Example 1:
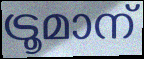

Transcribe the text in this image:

ട്രൂമാന്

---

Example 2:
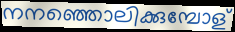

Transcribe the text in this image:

നനഞ്ഞൊലിക്കുമ്പോള്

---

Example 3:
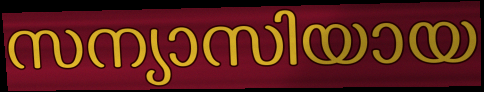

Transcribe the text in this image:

സന്യാസിയായ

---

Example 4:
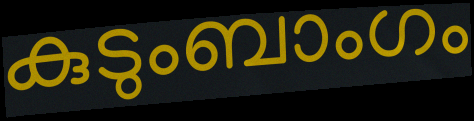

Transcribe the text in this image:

കുടുംബാംഗം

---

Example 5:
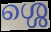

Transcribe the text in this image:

ശ്ശെ